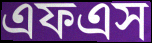
এফএস